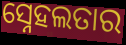
ସ୍ନେହଲତାର